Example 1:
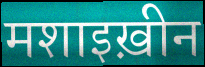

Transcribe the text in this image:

मशाइख़ीन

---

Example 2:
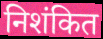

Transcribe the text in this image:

निशंकित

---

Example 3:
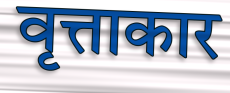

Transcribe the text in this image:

वृत्ताकार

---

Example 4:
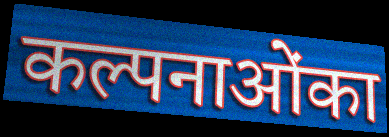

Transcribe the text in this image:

कल्पनाओंका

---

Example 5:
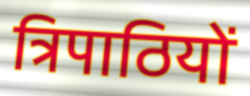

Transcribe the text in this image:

त्रिपाठियों